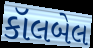
કૉલબેલ